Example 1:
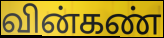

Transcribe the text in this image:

வின்கண்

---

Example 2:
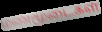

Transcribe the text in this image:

மண்மூடைகள்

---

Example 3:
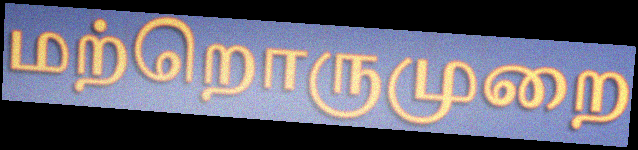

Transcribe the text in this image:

மற்றொருமுறை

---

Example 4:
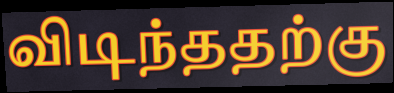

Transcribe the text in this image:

விடிந்ததற்கு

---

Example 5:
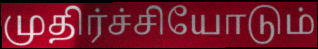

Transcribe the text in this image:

முதிர்ச்சியோடும்